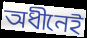
অধীনেই